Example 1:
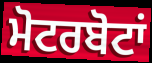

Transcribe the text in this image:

ਮੋਟਰਬੋਟਾਂ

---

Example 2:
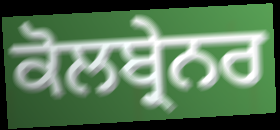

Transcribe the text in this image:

ਕੋਲਬ੍ਰੇਨਰ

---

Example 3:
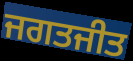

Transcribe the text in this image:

ਜਗਤਜੀਤ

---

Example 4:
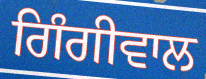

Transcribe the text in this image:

ਗਿੰਗੀਵਾਲ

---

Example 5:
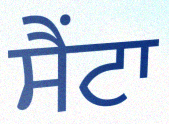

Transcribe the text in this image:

ਸੈਂਟਾ